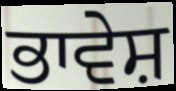
ਭਾਵੇਸ਼